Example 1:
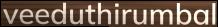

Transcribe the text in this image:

veeduthirumbal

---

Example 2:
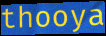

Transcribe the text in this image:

thooya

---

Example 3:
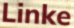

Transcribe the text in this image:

Linke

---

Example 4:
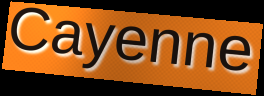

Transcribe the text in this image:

Cayenne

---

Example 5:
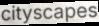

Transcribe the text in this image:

cityscapes